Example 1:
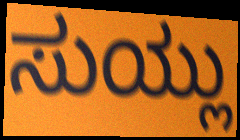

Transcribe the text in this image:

ಸುಯ್ಲು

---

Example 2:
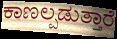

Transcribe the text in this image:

ಕಾಣಲ್ಪಡುತ್ತಾರೆ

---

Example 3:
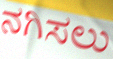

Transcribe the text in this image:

ನಗಿಸಲು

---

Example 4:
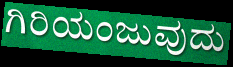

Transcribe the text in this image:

ಗಿರಿಯಂಜುವುದು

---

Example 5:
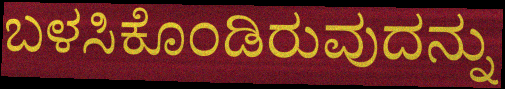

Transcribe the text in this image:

ಬಳಸಿಕೊಂಡಿರುವುದನ್ನು